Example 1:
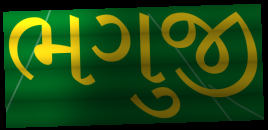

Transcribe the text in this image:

ભગુજી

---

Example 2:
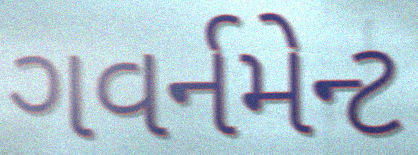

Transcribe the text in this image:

ગવર્નમેન્ટ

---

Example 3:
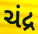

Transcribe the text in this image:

ચંદ્ર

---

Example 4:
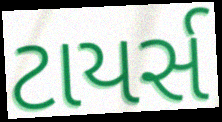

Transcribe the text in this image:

ટાયર્સ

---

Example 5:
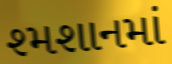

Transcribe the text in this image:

શ્મશાનમાં